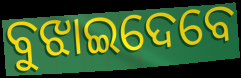
ବୁଝାଇଦେବେ